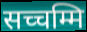
सच्चम्मि